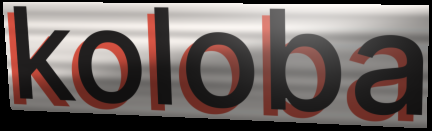
koloba